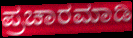
ಪ್ರಚಾರಮಾಡಿ